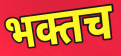
भक्तच